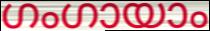
ഗംഗായാം